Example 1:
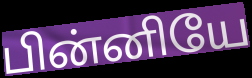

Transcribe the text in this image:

பின்னியே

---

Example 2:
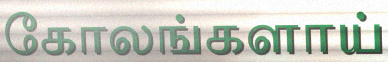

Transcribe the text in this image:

கோலங்களாய்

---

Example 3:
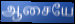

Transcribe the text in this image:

ஆசையே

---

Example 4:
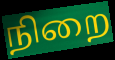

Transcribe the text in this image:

நிறை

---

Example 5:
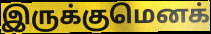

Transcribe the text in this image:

இருக்குமெனக்